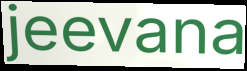
jeevana